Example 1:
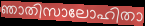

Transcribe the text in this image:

ഞാതിസാലോഹിതാ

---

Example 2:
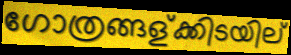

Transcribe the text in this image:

ഗോത്രങ്ങള്ക്കിടയില്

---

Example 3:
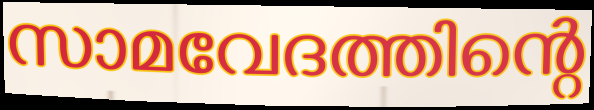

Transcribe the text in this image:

സാമവേദത്തിന്റെ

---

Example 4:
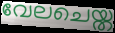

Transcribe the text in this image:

വേലചെയ്ത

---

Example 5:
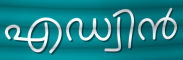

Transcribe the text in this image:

എഡ്വിൻ